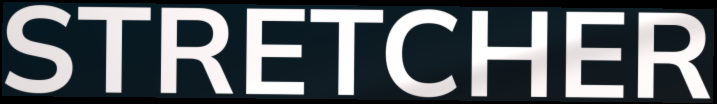
STRETCHER